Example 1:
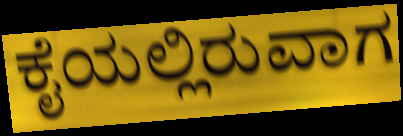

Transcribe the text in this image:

ಕೈಯಲ್ಲಿರುವಾಗ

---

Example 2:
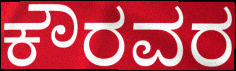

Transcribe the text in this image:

ಕೌರವರ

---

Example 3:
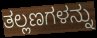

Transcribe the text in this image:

ತಲ್ಲಣಗಳನ್ನು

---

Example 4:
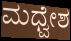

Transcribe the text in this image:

ಮಧ್ವೇಶ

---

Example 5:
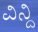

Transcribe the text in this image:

ವಿನ್ದಿ